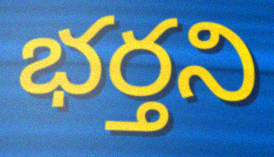
భర్తని